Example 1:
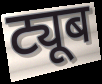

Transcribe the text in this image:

ट्यूब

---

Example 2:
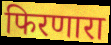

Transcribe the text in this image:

फिरणारा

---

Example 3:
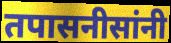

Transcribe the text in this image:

तपासनीसांनी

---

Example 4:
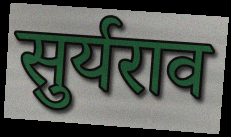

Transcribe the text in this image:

सुर्यराव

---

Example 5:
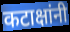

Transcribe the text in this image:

कटाक्षांनी